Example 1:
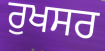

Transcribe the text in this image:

ਰੁਖਸਰ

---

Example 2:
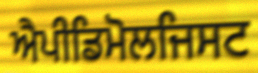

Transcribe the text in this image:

ਐਪੀਡਿਮੋਲਜਿਸਟ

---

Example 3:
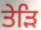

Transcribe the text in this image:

ਤੇੜਿ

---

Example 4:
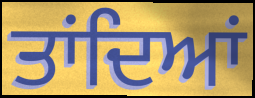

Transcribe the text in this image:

ਤਾਂਦਿਆਂ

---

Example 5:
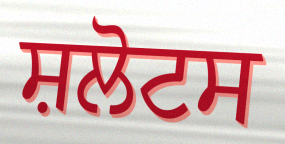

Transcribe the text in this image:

ਸ਼ਲੋਟਸ